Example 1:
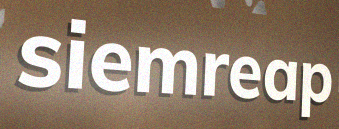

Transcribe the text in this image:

siemreap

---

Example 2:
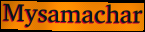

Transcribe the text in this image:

Mysamachar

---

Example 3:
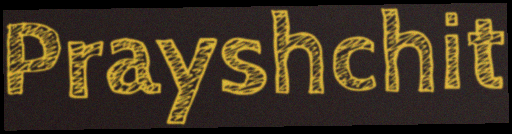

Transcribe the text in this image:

Prayshchit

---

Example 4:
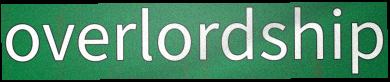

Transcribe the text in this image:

overlordship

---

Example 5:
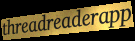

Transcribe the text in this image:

threadreaderapp